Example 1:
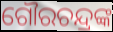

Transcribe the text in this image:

ଗୌରଚନ୍ଦ୍ରଙ୍କ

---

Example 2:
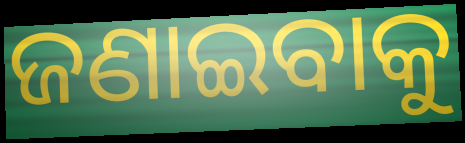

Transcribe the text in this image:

ଜଣାଇବାକୁ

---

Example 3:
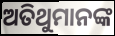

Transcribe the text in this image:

ଅତିଥୁମାନଙ୍କ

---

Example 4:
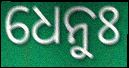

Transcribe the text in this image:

ଧେନୁଃ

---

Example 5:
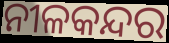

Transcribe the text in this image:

ନୀଳକନ୍ଦର